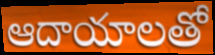
ఆదాయాలతో